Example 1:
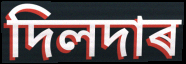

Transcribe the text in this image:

দিলদাৰ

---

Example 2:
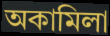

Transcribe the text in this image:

অকামিলা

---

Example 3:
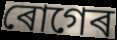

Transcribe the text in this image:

ৰোগেৰ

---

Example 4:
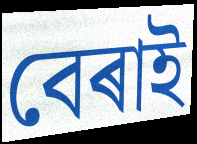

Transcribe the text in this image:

বেৰাই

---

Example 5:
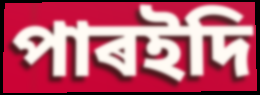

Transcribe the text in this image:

পাৰইদি